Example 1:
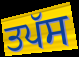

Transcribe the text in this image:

ਤਪੱਸ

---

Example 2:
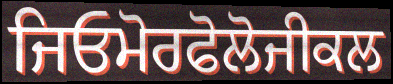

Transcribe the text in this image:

ਜਿਓਮੋਰਫੋਲੋਜੀਕਲ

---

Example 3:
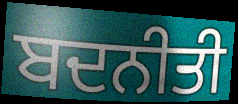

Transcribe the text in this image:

ਬਦਨੀਤੀ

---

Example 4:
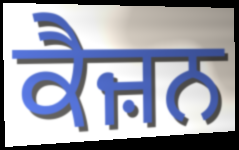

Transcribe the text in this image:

ਕੈਜ਼ਨ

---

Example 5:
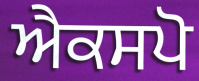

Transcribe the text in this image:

ਐਕਸਪੋ